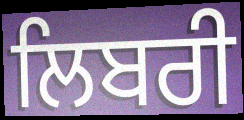
ਲਿਬਰੀ